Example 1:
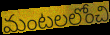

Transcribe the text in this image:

మంటలలోంచి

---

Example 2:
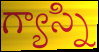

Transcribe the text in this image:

గ్యాస్ని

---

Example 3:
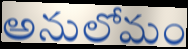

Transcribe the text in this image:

అనులోమం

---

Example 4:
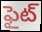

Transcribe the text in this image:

ఫైట్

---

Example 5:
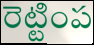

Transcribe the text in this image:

రెట్టింప